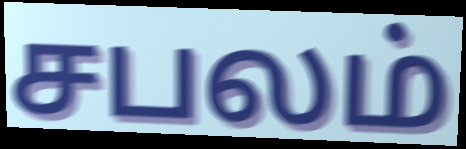
சபலம்